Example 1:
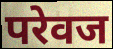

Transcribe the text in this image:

परेवज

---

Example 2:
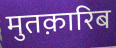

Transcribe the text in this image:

मुतक़ारिब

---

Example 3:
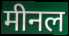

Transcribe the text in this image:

मीनल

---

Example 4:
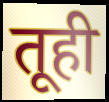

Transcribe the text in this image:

तूही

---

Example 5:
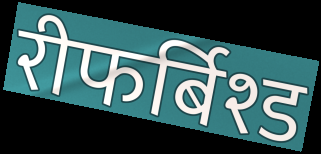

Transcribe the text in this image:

रीफर्बिश्ड